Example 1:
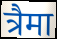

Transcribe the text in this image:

त्रैमा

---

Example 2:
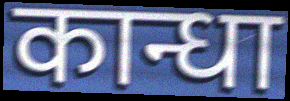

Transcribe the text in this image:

कान्धा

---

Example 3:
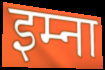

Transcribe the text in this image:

इम्ना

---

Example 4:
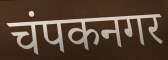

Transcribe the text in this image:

चंपकनगर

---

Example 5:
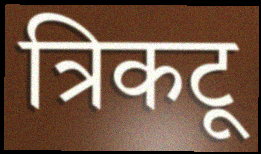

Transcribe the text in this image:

त्रिकटू